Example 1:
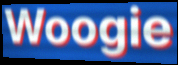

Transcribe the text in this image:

Woogie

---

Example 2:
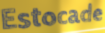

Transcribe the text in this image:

Estocade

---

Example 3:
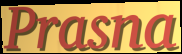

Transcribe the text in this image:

Prasna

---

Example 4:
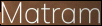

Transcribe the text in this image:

Matram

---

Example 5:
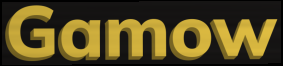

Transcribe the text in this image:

Gamow